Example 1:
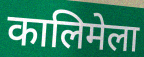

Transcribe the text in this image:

कालिमेला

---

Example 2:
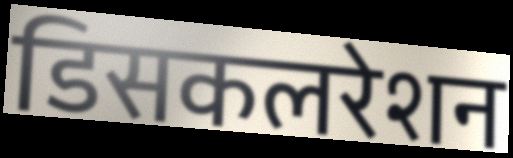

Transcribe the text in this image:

डिसकलरेशन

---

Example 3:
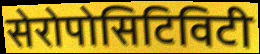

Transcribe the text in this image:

सेरोपोसिटिविटी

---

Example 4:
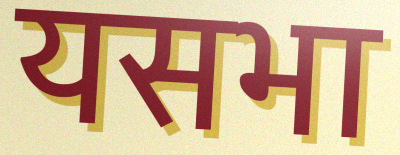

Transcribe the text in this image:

यसभा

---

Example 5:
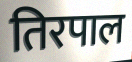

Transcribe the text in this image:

तिरपाल